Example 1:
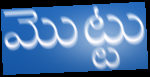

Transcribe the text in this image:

మొట్టు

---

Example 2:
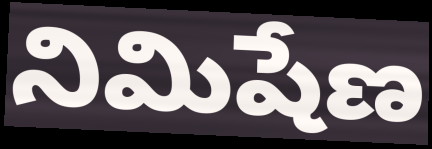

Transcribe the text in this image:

నిమిషేణ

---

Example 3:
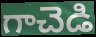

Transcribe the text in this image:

గాచెడి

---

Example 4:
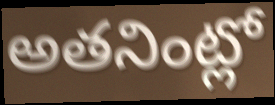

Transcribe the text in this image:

అతనింట్లో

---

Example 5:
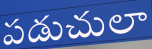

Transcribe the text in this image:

పడుచులా